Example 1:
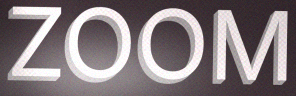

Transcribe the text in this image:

ZOOM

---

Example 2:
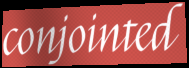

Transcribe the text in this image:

conjointed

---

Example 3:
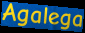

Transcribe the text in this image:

Agalega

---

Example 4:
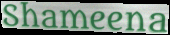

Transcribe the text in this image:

Shameena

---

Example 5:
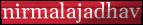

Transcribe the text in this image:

nirmalajadhav